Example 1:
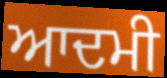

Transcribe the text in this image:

ਆਦਮੀ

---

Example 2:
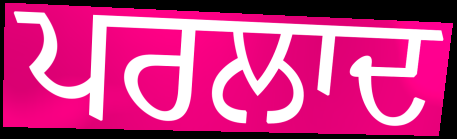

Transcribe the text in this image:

ਪਰਲਾਦ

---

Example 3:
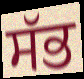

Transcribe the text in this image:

ਸੱਭ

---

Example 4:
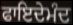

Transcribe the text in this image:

ਫਾਇਦੇਮੰਦ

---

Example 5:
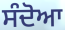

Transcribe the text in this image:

ਸੰਦੋਆ